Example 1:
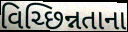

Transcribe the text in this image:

વિચ્છિન્નતાના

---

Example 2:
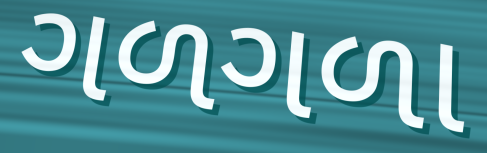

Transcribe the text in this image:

ગળગળા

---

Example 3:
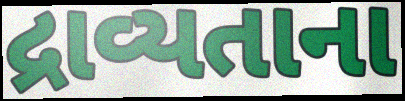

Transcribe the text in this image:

દ્રાવ્યતાના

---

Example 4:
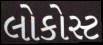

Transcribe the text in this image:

લોકોસ્ટ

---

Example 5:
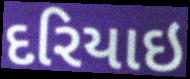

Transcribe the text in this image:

દરિયાઇ